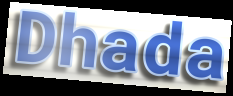
Dhada